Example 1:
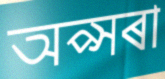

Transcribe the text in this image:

অপ্সৰা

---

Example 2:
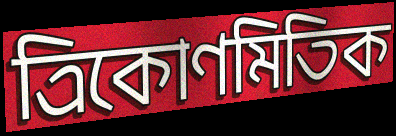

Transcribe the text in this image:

ত্ৰিকোণমিতিক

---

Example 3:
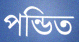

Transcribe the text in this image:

পন্ডিত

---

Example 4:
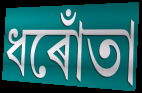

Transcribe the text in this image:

ধৰোঁতা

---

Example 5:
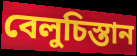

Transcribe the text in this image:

বেলুচিস্তান